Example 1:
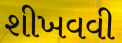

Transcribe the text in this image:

શીખવવી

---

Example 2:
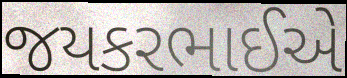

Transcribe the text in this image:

જયકરભાઈએ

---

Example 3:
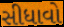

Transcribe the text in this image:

સીધાવો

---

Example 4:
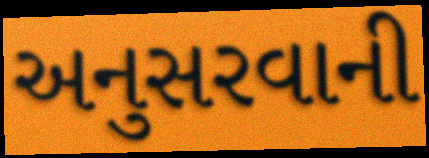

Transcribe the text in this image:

અનુસરવાની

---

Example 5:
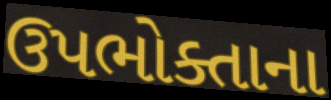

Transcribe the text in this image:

ઉપભોક્તાના